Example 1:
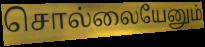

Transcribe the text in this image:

சொல்லையேனும்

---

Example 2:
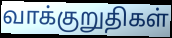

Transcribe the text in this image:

வாக்குறுதிகள்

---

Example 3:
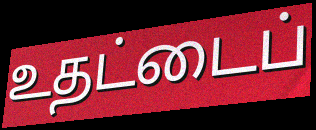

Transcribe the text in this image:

உதட்டைப்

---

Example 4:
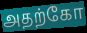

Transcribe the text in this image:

அதற்கோ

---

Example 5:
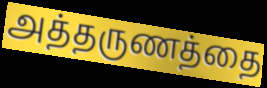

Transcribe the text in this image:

அத்தருணத்தை